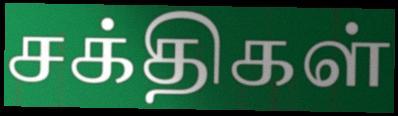
சக்திகள்